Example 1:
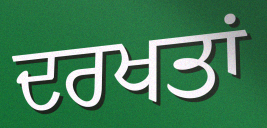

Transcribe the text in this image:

ਦਰਖਤਾਂ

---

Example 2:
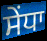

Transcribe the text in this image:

ਸੇਂਧਾ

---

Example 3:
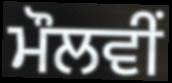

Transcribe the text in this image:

ਮੌਲਵੀਂ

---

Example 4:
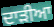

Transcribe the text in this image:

ਦਾੜੀਆ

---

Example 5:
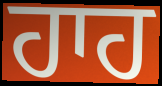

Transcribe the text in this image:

ਹਾਹ